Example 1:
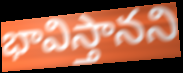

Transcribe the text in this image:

భావిస్తానని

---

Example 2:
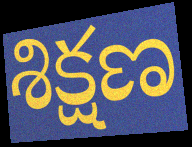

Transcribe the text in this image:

శిక్షణ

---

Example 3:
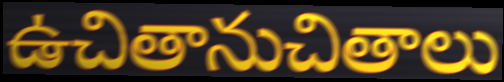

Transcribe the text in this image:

ఉచితానుచితాలు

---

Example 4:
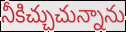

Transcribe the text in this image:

నీకిచ్చుచున్నాను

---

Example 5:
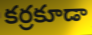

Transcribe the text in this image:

కర్రకూడా